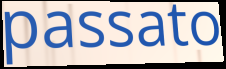
passato